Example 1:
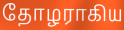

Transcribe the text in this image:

தோழராகிய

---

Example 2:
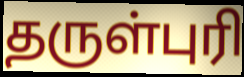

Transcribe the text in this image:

தருள்புரி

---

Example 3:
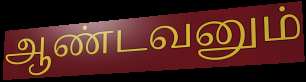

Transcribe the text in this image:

ஆண்டவனும்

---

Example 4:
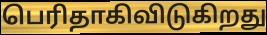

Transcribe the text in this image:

பெரிதாகிவிடுகிறது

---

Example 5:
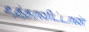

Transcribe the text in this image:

உத்தரவிட்டான்